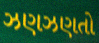
ઝણઝણતો